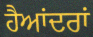
ਹੈਆਂਦਰਾਂ